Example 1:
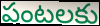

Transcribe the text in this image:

పంటలకు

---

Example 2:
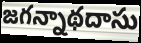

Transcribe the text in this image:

జగన్నాథదాసు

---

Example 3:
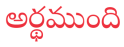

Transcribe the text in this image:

అర్థముంది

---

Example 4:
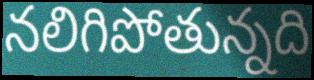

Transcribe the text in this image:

నలిగిపోతున్నది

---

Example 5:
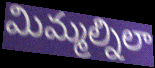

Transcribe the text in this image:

మిమ్మల్నిలా